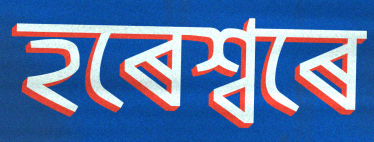
হৰেশ্বৰে